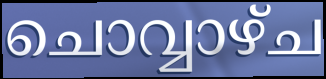
ചൊവ്വാഴ്ച